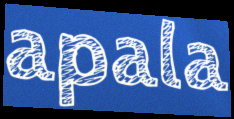
apala